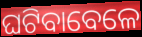
ଘଟିବାବେଳେ